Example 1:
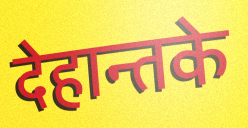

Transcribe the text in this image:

देहान्तके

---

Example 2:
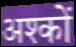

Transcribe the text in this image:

अश्कों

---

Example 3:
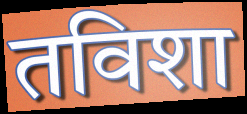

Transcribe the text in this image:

तविशा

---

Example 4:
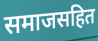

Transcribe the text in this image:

समाजसहित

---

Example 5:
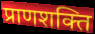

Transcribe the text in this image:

प्राणशक्ति